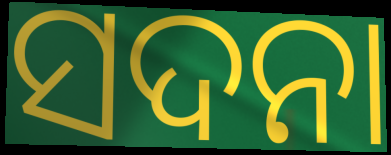
ସଦନା